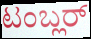
ಟಂಬ್ಲರ್